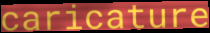
caricature